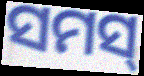
ସମସ୍